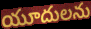
యూదులను